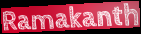
Ramakanth